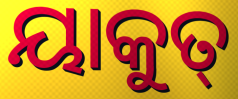
ୟାକୁତ୍